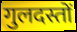
गुलदस्तों